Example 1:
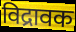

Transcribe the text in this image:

विद्रावक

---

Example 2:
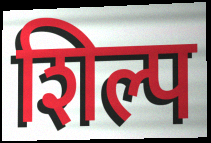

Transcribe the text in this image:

शिल्प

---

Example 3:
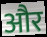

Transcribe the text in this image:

और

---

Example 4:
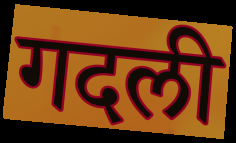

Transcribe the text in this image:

गदली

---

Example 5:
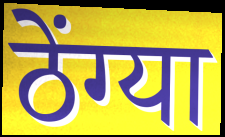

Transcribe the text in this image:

ठेंग्या